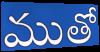
ముతో